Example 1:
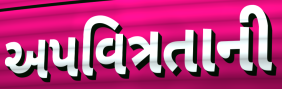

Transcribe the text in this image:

અપવિત્રતાની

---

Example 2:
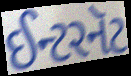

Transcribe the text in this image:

ઈન્ટરનૅટ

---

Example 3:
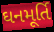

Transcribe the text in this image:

ઘનમૂર્તિ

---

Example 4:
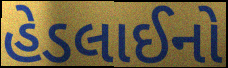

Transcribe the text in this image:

હેડલાઈનો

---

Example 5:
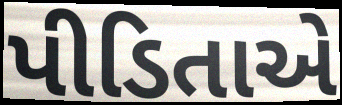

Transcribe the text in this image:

પીડિતાએ